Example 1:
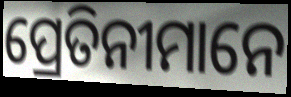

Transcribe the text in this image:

ପ୍ରେତିନୀମାନେ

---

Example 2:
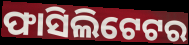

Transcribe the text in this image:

ଫାସିଲିଟେଟର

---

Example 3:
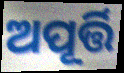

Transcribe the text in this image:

ଅପୂର୍ତ୍ତି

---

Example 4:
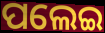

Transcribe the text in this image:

ପଲେଇ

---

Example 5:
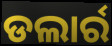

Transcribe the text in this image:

ଡଲାର୍ର